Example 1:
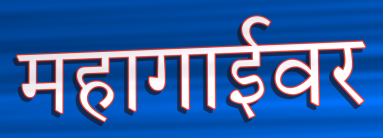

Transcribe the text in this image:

महागाईवर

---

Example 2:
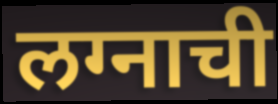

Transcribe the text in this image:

लग्नाची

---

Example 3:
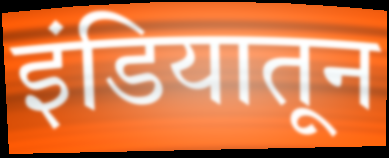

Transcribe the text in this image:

इंडियातून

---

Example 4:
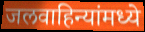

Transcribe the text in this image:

जलवाहिन्यांमध्ये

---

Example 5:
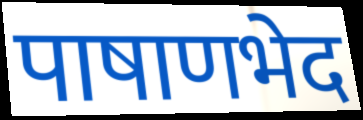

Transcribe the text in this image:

पाषाणभेद